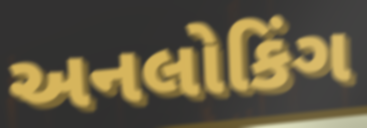
અનલોકિંગ